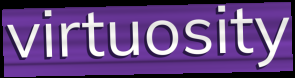
virtuosity